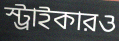
স্ট্রাইকারও